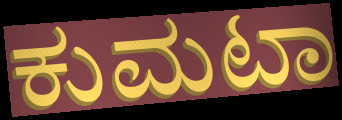
ಕುಮಟಾ